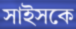
সাইসকে